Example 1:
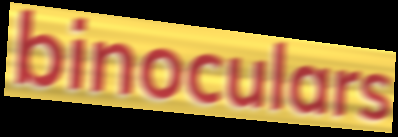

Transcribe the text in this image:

binoculars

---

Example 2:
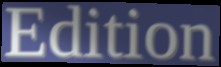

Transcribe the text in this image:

Edition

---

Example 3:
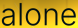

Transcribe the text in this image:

alone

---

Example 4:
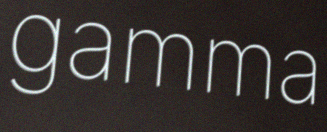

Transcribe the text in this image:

gamma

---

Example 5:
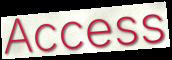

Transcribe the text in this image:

Access